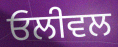
ਓਲੀਵਲ